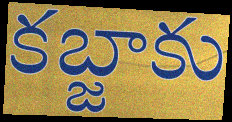
కబ్జాకు